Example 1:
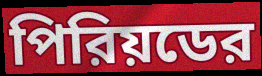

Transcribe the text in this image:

পিরিয়ডের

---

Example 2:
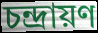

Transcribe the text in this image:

চন্দ্রায়ণ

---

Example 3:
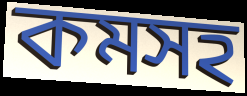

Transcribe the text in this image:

কমসহ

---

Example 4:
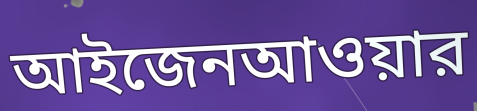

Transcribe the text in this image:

আইজেনআওয়ার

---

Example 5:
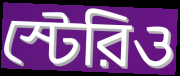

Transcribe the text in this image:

স্টেরিও